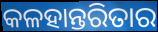
କଳହାନ୍ତରିତାର